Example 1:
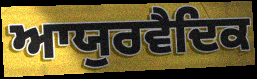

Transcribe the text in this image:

ਆਯੁਰਵੈਦਿਕ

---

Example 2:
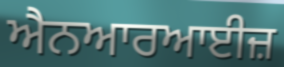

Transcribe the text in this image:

ਐਨਆਰਆਈਜ਼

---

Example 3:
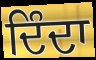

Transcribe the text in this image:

ਦਿੰਦਾ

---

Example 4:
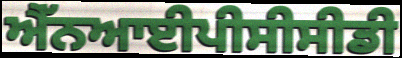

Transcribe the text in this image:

ਐੱਨਆਈਪੀਸੀਸੀਡੀ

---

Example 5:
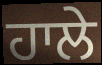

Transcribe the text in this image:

ਹਾਲੇ